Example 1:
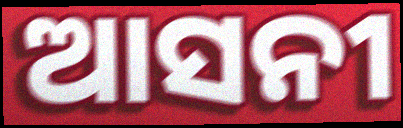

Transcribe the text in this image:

ଆସନୀ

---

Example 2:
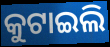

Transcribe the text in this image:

କୁଟାଇଲି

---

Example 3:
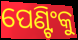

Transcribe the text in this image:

ପେଣ୍ଟିଂକୁ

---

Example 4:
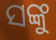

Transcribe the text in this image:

ସଙ୍କୁ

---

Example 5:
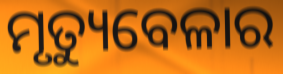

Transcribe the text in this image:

ମୃତ୍ୟୁବେଳାର